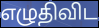
எழுதிவிட